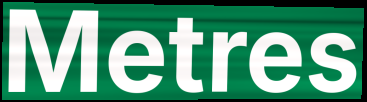
Metres